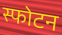
स्फोटन